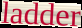
ladder